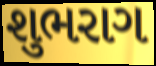
શુભરાગ